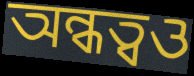
অন্ধত্বও